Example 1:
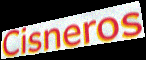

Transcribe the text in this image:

Cisneros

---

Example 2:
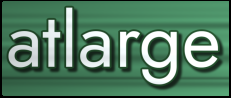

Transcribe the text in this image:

atlarge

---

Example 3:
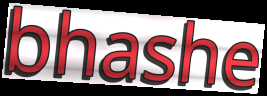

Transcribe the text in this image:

bhashe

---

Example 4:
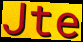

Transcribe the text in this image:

Jte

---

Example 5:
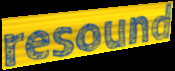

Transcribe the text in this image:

resound